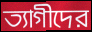
ত্যাগীদের